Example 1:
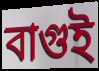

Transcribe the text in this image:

বাগুই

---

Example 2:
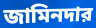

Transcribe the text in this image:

জামিনদার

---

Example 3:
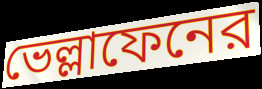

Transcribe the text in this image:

ভেল্লাফেনের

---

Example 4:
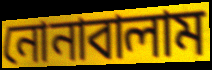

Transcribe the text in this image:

নোনাবালাম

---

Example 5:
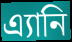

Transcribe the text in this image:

এ্যানি